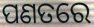
ପଣତରେ